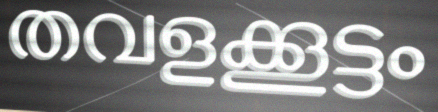
തവളക്കൂട്ടം